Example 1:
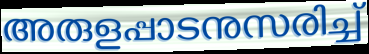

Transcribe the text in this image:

അരുളപ്പാടനുസരിച്ച്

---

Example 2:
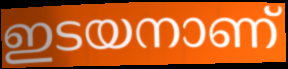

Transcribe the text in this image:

ഇടയനാണ്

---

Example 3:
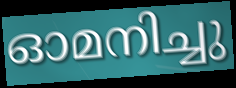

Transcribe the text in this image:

ഓമനിച്ചു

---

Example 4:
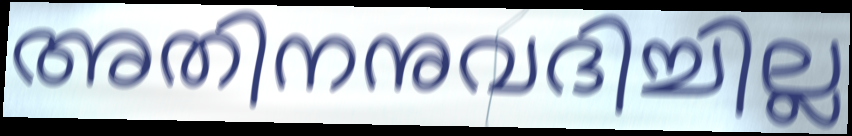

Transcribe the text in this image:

അതിനനുവദിച്ചില്ല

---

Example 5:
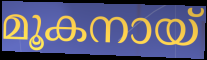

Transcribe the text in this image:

മൂകനായ്